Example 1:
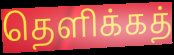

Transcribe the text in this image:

தெளிக்கத்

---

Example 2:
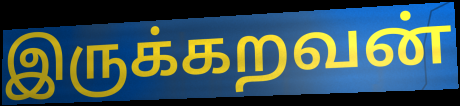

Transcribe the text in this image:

இருக்கறவன்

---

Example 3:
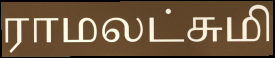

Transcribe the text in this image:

ராமலட்சுமி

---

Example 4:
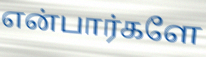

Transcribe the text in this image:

என்பார்களே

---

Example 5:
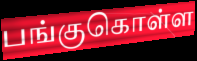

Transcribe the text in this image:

பங்குகொள்ள